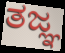
ತಜ್ಞ